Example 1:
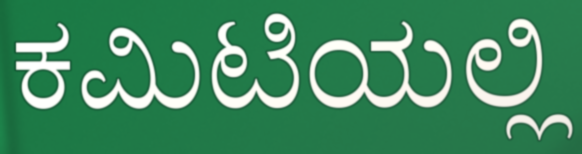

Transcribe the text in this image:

ಕಮಿಟಿಯಲ್ಲಿ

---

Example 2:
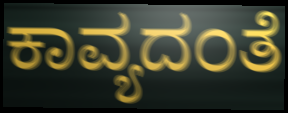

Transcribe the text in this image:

ಕಾವ್ಯದಂತೆ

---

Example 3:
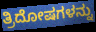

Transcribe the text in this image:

ತ್ರಿದೋಷಗಳನ್ನು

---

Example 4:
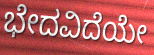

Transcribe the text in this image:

ಭೇದವಿದೆಯೇ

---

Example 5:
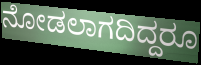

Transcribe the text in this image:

ನೋಡಲಾಗದಿದ್ದರೂ